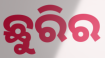
ଛୁରିର